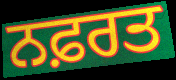
ਨਫ਼ਰਤ